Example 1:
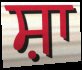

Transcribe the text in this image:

ਸ਼ਾ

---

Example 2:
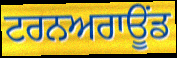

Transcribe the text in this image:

ਟਰਨਅਰਾਊਂਡ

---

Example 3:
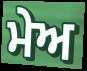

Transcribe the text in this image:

ਮੇਅ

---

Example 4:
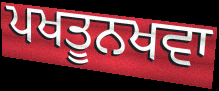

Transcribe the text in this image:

ਪਖਤੂਨਖਵਾ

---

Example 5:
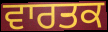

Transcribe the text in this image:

ਵਾਰਤਕ